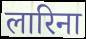
लारिना